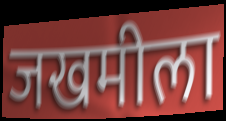
जखमीला